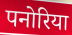
पनोरिया